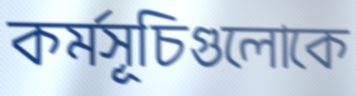
কর্মসূচিগুলোকে